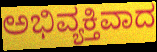
ಅಭಿವ್ಯಕ್ತಿವಾದ